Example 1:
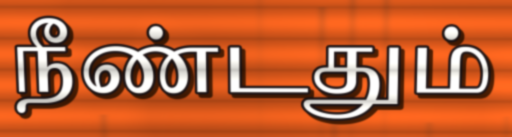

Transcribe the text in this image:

நீண்டதும்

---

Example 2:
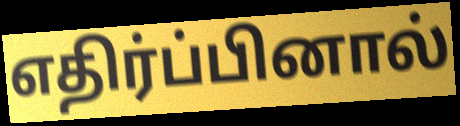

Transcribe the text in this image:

எதிர்ப்பினால்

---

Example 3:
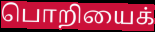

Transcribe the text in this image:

பொறியைக்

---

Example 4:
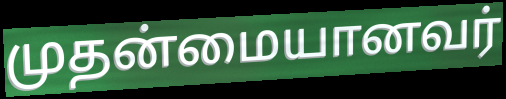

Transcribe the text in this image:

முதன்மையானவர்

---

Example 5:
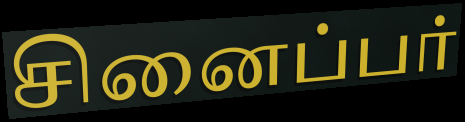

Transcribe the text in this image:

சினைப்பர்